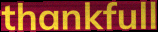
thankfull